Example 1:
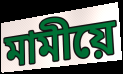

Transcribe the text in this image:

মামীয়ে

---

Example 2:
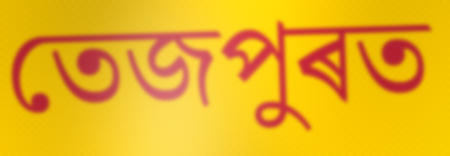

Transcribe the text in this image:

তেজপুৰত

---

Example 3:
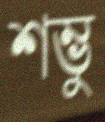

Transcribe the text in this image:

শম্ভু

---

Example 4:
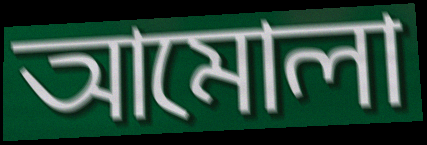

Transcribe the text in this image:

আমোলা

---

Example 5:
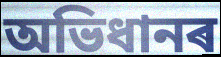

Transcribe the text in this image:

অভিধানৰ